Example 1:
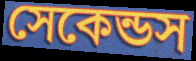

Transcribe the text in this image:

সেকেন্ডস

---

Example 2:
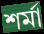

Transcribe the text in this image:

শর্মা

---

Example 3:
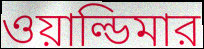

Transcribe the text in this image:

ওয়াল্ডিমার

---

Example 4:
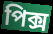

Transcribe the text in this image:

পিক্স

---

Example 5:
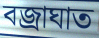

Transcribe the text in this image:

বজ্রাঘাত